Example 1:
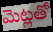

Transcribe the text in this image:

మెట్లతో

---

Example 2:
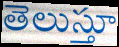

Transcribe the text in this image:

తెలుస్తూ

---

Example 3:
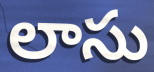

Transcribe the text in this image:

లాసు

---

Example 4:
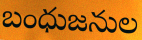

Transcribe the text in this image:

బంధుజనుల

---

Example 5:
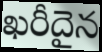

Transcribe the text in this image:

ఖరీదైన